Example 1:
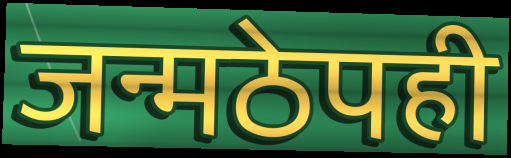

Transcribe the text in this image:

जन्मठेपही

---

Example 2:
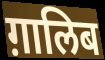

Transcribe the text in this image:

ग़ालिब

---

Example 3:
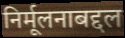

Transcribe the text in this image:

निर्मूलनाबद्दल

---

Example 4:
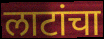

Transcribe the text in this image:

लाटांचा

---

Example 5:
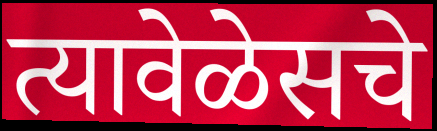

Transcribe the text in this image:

त्यावेळेसचे